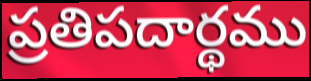
ప్రతిపదార్థము